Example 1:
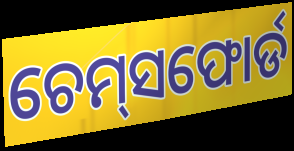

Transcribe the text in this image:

ଚେମ୍‌ସଫୋର୍ଡ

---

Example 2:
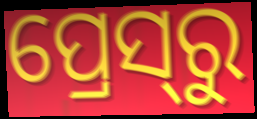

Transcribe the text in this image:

ପ୍ରେସ୍‌ରୁ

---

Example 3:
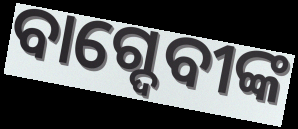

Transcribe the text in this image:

ବାଗ୍ଦେବୀଙ୍କ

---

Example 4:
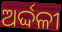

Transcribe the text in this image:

ଅର୍ଦ୍ଦଳୀ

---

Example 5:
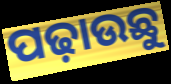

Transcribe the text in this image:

ପଢ଼ାଉଛୁ